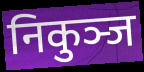
निकुञ्ज